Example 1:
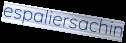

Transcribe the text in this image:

espaliersachin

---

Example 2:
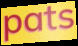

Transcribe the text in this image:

pats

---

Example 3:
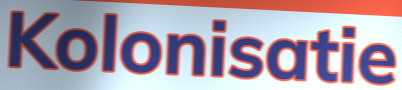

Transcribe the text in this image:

Kolonisatie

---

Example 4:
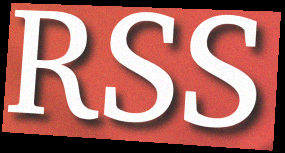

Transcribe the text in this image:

RSS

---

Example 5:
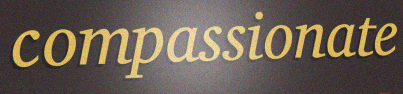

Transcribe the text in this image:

compassionate